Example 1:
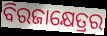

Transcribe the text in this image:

ବିରଜାକ୍ଷେତ୍ରର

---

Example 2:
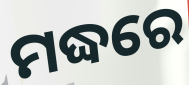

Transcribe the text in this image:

ମଦ୍ଧରେ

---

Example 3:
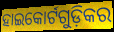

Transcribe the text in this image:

ହାଇକୋର୍ଟଗୁଡ଼ିକର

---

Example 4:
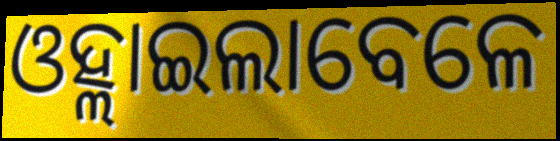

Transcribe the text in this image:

ଓହ୍ଲାଇଲାବେଳେ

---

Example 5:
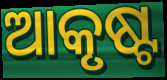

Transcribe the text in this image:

ଆକୃଷ୍ଟ